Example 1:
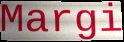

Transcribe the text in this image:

Margi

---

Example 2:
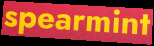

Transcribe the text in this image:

spearmint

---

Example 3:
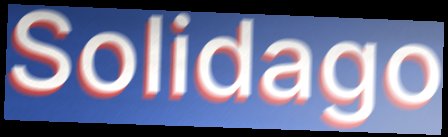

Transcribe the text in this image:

Solidago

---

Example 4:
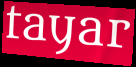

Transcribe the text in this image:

tayar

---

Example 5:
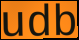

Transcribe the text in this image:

udb